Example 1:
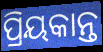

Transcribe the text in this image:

ପ୍ରିୟକାନ୍ତ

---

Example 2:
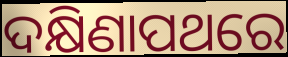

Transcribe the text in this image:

ଦକ୍ଷିଣାପଥରେ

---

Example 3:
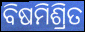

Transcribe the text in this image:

ବିଷମିଶ୍ରିତ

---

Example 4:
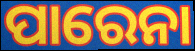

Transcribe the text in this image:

ପାରେନା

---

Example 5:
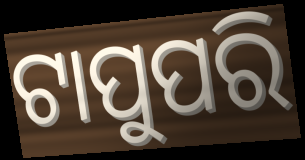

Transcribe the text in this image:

ଟାପୁପରି